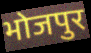
भोजपुर